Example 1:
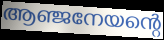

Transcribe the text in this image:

ആഞ്ജനേയന്റെ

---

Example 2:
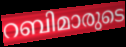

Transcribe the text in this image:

റബിമാരുടെ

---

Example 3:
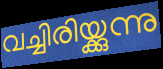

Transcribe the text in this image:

വച്ചിരിയ്ക്കുന്നു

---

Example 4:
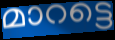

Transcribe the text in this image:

മാറട്ടെ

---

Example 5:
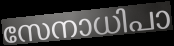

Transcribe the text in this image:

സേനാധിപാ